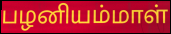
பழனியம்மாள்